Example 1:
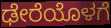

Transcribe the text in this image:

ಢೇರೆಯೊಳಗೆ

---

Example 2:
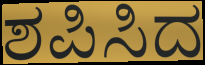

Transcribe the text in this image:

ಶಪಿಸಿದ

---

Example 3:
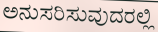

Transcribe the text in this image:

ಅನುಸರಿಸುವುದರಲ್ಲಿ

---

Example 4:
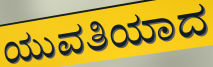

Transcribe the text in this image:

ಯುವತಿಯಾದ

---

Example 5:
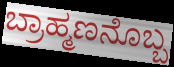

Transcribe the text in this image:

ಬ್ರಾಹ್ಮಣನೊಬ್ಬ